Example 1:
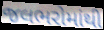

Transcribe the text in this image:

જલભરોમાંથી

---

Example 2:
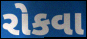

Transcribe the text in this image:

રોકવા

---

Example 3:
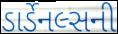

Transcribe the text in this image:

ડાર્ડેનલ્સની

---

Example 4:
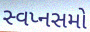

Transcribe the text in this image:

સ્વપ્નસમો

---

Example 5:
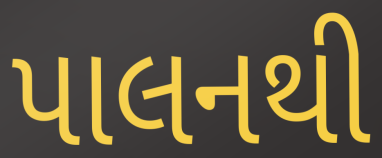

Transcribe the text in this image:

પાલનથી